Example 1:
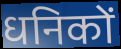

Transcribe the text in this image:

धनिकों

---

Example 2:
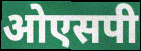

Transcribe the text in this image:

ओएसपी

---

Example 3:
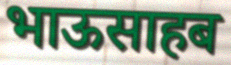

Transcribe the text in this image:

भाऊसाहब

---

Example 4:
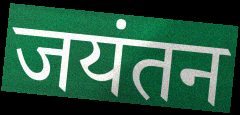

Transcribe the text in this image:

जयंतन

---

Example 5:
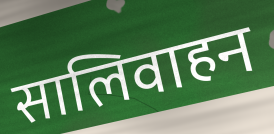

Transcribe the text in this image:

सालिवाहन